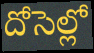
దోసెల్లో